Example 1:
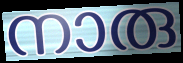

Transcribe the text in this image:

നാരു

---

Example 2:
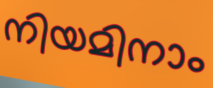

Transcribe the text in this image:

നിയമിനാം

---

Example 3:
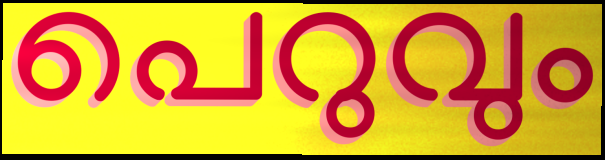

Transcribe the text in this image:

പെറുവും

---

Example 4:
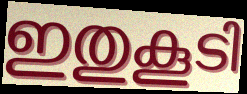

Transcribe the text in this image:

ഇതുകൂടി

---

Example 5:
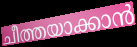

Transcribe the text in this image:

ചീത്തയാക്കാൻ